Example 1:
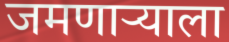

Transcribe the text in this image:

जमणाऱ्याला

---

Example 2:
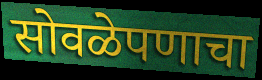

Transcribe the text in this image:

सोवळेपणाचा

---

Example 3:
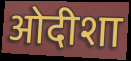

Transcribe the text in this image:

ओदीशा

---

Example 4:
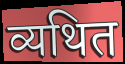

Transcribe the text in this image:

व्यथित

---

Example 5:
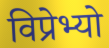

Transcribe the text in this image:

विप्रेभ्यो